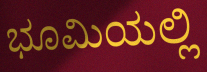
ಭೂಮಿಯಲ್ಲಿ